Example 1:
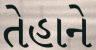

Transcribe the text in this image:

તેહાને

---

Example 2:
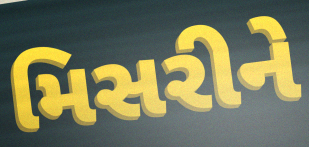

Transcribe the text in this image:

મિસરીને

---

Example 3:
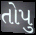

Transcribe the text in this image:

તોપુ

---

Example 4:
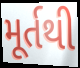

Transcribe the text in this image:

મૂર્તથી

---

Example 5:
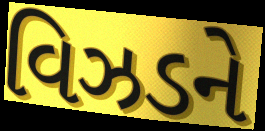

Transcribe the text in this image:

વિઝડને